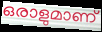
ഒരാളുമാണ്